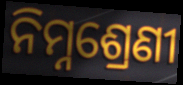
ନିମ୍ନଶ୍ରେଣୀ